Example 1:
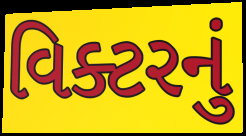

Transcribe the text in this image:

વિક્ટરનું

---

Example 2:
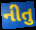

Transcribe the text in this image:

નીતુ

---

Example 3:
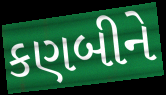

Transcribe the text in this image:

કણબીને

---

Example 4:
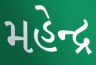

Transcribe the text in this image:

મહેન્દ્ર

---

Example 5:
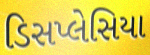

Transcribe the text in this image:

ડિસપ્લેસિયા